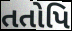
તતોપિ